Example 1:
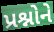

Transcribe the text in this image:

પ્રશ્નોને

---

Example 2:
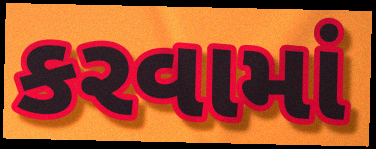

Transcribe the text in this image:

કરવામાં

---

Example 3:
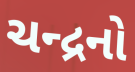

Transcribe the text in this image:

ચન્દ્રનો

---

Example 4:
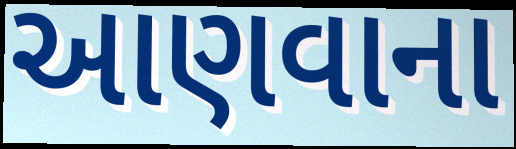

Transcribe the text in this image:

આણવાના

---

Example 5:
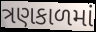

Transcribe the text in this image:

ત્રણકાળમાં